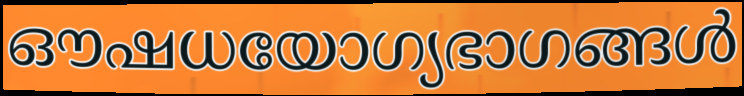
ഔഷധയോഗ്യഭാഗങ്ങൾ